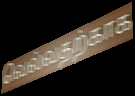
வெல்வதற்காக